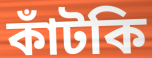
কাঁটকি